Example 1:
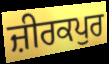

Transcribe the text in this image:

ਜ਼ੀਰਕਪੁਰ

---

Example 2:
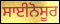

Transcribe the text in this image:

ਸਾਈਨੋਸੂਰ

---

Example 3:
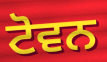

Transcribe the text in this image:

ਟੋਵਨ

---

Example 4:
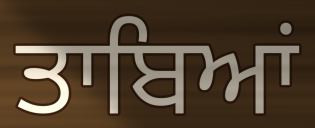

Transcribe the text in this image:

ਤਾਬਿਆਂ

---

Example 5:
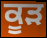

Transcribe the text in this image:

ਕੂੜ